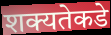
शक्यतेकडे